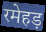
रमेहड़